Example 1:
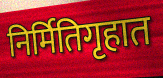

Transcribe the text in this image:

निर्मितिगृहात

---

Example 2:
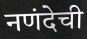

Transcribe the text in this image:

नणंदेची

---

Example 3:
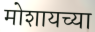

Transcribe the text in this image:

मोशायच्या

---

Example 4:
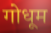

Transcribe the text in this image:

गोधूम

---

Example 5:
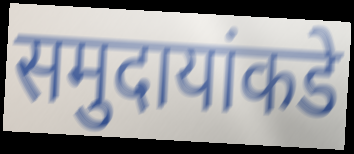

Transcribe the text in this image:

समुदायांकडे